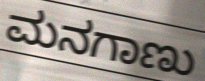
ಮನಗಾಣು